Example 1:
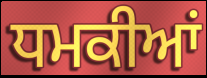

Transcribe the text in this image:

ਧਮਕੀਆਂ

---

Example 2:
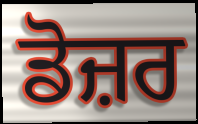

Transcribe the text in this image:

ਡੋਜ਼ਰ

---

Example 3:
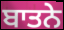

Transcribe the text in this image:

ਬਾਤਨੇ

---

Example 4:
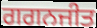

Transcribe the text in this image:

ਗਗਨਜੀਤ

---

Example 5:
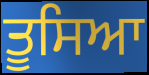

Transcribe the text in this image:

ਤੂਸਿਆ